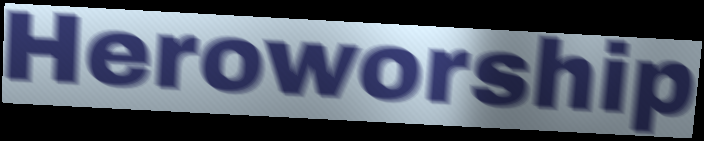
Heroworship